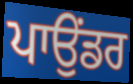
ਪਾਉਂਡਰ